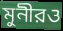
মুনীরও